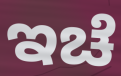
ಇಚೆ